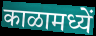
काळामध्यें